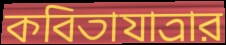
কবিতাযাত্রার